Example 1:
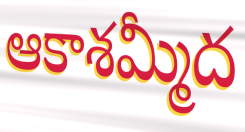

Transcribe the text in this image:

ఆకాశమ్మీద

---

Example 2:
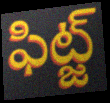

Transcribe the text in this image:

ఫిట్జ్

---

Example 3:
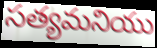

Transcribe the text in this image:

సత్యమనియు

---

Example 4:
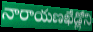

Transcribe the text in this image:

నారాయణఖేడ్లోని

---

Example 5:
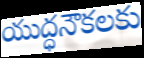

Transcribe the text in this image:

యుద్ధనౌకలకు